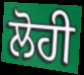
ਲੋਹੀ